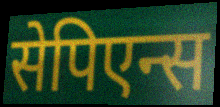
सेपिएन्स